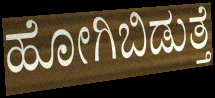
ಹೋಗಿಬಿಡುತ್ತೆ